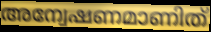
അന്വേഷണമാണിത്